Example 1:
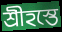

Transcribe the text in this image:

শ্রীহস্তে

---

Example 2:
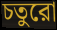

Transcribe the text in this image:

চতুরো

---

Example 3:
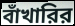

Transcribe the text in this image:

বাঁখারির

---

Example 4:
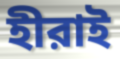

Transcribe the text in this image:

হীরাই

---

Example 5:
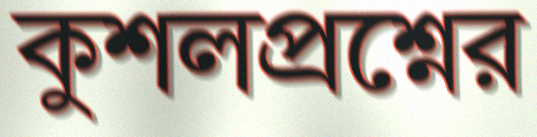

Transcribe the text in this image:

কুশলপ্রশ্নের